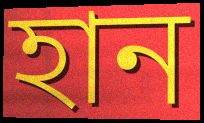
হান